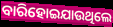
ବାରିହୋଇଯାଉଥିଲେ